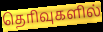
தெரிவுகளில்